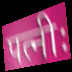
पत्नीः